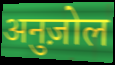
अनुज़ोल